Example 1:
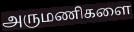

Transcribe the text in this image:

அருமணிகளை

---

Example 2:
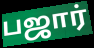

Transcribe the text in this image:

பஜார்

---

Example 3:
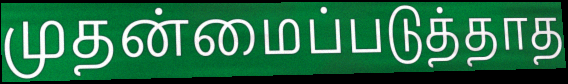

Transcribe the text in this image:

முதன்மைப்படுத்தாத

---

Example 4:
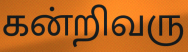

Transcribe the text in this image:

கன்றிவரு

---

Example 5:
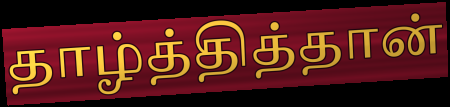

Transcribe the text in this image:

தாழ்த்தித்தான்